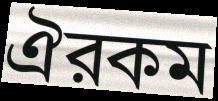
ঐরকম